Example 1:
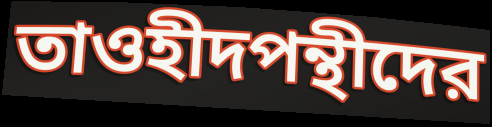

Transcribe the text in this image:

তাওহীদপন্থীদের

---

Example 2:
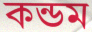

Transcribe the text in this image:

কন্ডম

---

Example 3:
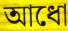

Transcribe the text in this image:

আধো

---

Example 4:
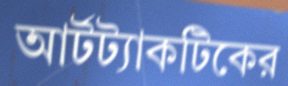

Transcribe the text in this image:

আর্টট্যাকটিকের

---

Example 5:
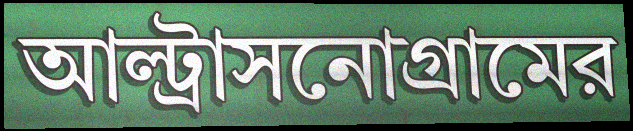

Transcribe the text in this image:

আল্ট্রাসনোগ্রামের